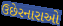
ઉછેરનારાઓ